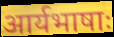
आर्यभाषाः